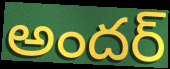
అందర్